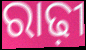
ରାଢ଼ୀ